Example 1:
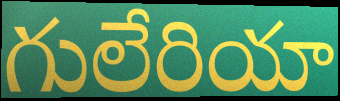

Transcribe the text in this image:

గులేరియా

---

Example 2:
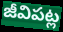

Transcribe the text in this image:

జీవిపట్ల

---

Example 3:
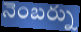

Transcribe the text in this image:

నెంబర్ను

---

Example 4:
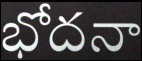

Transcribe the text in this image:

భోదనా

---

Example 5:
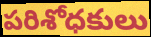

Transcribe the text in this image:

పరిశోధకులు